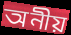
অনীয়